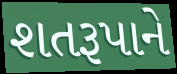
શતરૂપાને